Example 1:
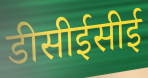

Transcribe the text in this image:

डीसीईसीई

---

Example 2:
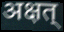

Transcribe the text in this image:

अक्षत्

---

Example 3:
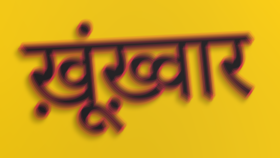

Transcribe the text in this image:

ख़ूंख़्वार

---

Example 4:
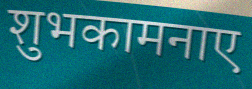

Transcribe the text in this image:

शुभकामनाए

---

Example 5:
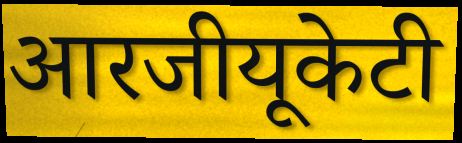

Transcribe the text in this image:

आरजीयूकेटी